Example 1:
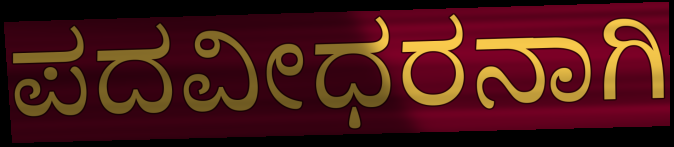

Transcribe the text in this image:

ಪದವೀಧರನಾಗಿ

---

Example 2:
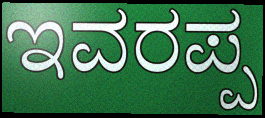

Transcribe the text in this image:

ಇವರಪ್ಪ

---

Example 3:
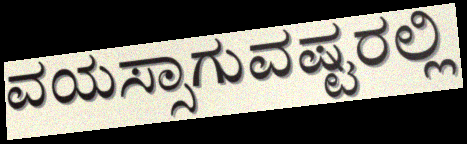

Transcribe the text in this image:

ವಯಸ್ಸಾಗುವಷ್ಟರಲ್ಲಿ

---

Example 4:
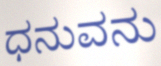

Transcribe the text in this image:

ಧನುವನು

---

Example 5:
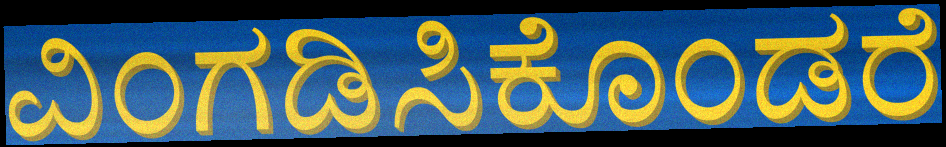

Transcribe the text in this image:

ವಿಂಗಡಿಸಿಕೊಂಡರೆ